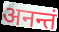
अनन्तं